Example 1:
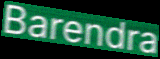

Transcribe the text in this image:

Barendra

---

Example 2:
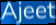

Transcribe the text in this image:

Ajeet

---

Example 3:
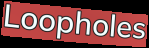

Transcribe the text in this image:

Loopholes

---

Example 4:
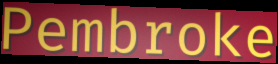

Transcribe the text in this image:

Pembroke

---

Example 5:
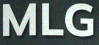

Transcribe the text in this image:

MLG